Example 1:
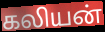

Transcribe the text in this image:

கலியன்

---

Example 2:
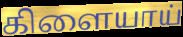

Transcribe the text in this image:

கிளையாய்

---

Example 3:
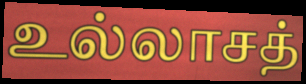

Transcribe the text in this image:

உல்லாசத்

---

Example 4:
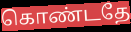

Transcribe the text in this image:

கொண்டதே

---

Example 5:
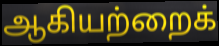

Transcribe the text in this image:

ஆகியற்றைக்